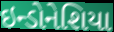
ઇન્ડોનેશિયા